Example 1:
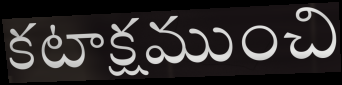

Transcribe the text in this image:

కటాక్షముంచి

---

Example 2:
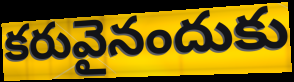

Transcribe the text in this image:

కరువైనందుకు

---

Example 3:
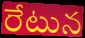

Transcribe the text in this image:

రేటున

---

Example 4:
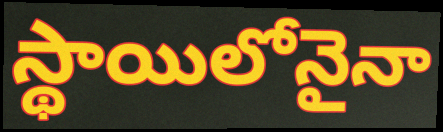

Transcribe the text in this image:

స్థాయిలోనైనా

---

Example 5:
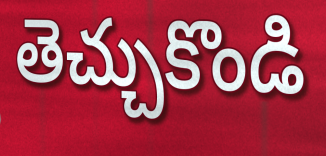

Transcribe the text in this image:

తెచ్చుకొండి